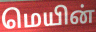
மெயின்